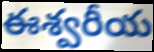
ఈశ్వరీయ